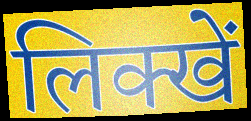
लिक्खें